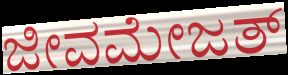
ಜೀವಮೇಜತ್